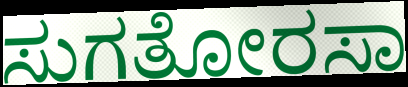
ಸುಗತೋರಸಾ